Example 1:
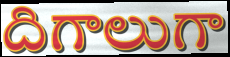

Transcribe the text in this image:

దిగాలుగా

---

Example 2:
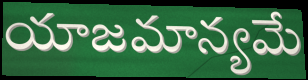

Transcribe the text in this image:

యాజమాన్యమే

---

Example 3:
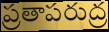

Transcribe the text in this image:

ప్రతాపరుద్ర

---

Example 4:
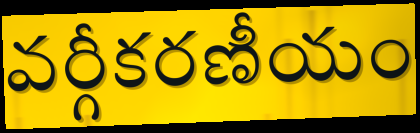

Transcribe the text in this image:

వర్గీకరణీయం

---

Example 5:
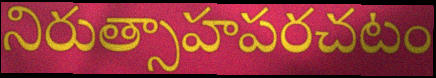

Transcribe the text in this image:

నిరుత్సాహపరచటం